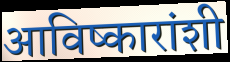
आविष्कारांशी